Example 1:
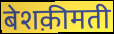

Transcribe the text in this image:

बेशक़ीमती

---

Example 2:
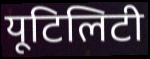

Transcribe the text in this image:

यूटिलिटी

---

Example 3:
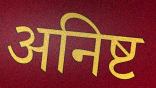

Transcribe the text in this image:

अनिष्ट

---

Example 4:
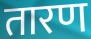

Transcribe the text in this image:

तारण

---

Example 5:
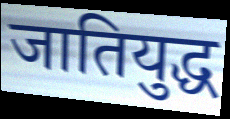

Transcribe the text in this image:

जातियुद्ध